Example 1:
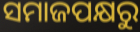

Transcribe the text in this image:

ସମାଜପକ୍ଷରୁ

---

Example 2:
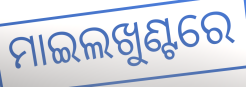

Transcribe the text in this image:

ମାଇଲଖୁଣ୍ଟରେ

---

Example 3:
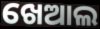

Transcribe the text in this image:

ଖେଆଲ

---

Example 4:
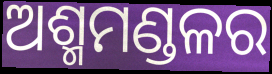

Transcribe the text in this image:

ଅଶ୍ମମଣ୍ଡଳର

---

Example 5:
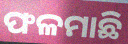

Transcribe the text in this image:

ଫଳମାଛି